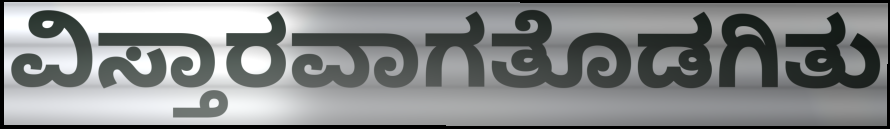
ವಿಸ್ತಾರವಾಗತೊಡಗಿತು